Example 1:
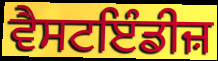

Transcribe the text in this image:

ਵੈਸਟਇੰਡੀਜ਼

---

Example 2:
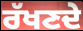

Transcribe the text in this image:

ਰੱਖਣਦੇ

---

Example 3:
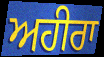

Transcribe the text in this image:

ਅਹੀਰਾ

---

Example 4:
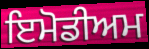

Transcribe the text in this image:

ਇਮੋਡੀਅਮ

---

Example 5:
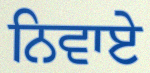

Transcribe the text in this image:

ਨਿਵਾਏ